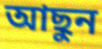
আছুন